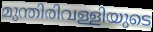
മുന്തിരിവള്ളിയുടെ